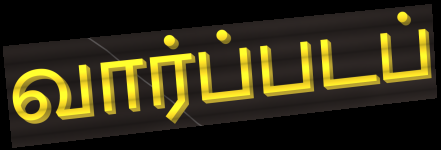
வார்ப்படப்